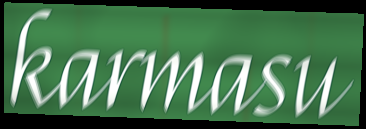
karmasu